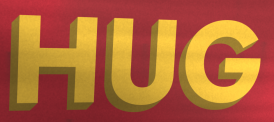
HUG